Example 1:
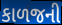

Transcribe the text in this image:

કાળજની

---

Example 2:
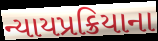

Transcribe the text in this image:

ન્યાયપ્રક્રિયાના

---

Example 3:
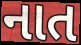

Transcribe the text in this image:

નાત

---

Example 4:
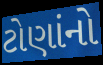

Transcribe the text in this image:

ટોણાંનો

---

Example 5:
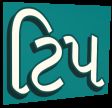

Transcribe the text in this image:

ટિપ